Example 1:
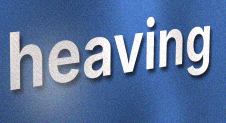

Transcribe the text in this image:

heaving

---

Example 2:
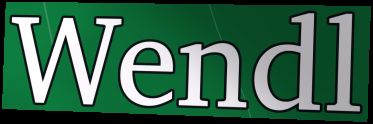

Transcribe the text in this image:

Wendl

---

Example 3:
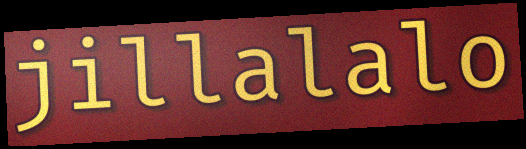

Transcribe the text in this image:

jillalalo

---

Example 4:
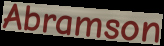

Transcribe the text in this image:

Abramson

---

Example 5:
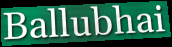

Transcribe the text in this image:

Ballubhai